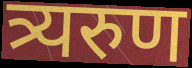
त्र्यरुण